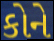
કોને